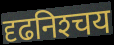
दृढनिश्‍चय